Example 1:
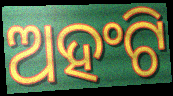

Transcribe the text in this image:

ଅହଂଟି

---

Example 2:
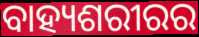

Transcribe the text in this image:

ବାହ୍ୟଶରୀରର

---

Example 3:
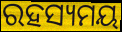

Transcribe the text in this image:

ରହସ୍ୟମୟ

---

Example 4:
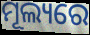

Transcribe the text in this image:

ମୂଲ୍ୟରେ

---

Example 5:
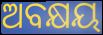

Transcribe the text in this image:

ଅବକ୍ଷୟ